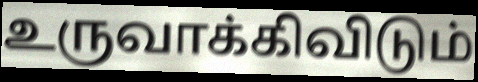
உருவாக்கிவிடும்